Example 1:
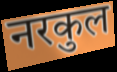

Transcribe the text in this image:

नरकुल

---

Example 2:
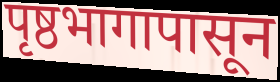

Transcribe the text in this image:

पृष्ठभागापासून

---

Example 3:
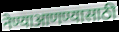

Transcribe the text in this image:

नेण्याआणण्यासाठी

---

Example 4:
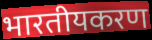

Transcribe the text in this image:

भारतीयकरण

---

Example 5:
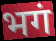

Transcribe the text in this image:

भगं